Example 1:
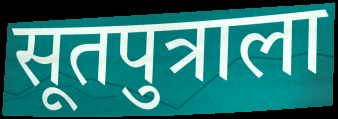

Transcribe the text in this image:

सूतपुत्राला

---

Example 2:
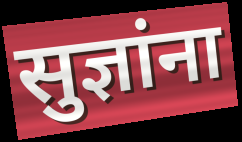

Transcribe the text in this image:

सुज्ञांना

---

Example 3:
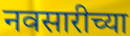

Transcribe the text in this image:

नवसारीच्या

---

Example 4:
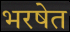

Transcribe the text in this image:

भरषेत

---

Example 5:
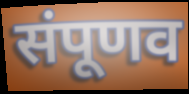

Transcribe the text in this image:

संपूणव